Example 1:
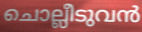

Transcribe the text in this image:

ചൊല്ലീടുവൻ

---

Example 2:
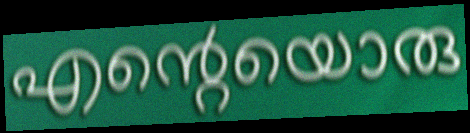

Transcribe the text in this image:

എന്റെയൊരു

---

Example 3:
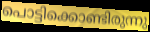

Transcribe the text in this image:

പൊട്ടിക്കൊണ്ടിരുന്നു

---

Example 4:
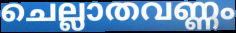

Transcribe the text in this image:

ചെല്ലാതവണ്ണം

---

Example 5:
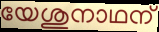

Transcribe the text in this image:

യേശുനാഥന്